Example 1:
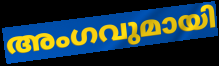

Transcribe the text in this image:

അംഗവുമായി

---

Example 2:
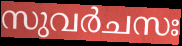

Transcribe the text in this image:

സുവർചസഃ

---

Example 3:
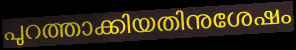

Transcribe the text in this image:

പുറത്താക്കിയതിനുശേഷം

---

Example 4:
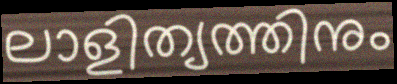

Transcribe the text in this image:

ലാളിത്യത്തിനും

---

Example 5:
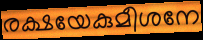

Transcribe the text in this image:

രക്ഷയേകുമീശനേ